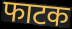
फाटक